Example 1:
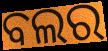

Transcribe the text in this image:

ବଲର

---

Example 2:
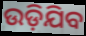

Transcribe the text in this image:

ଉଡ଼ିଯିବ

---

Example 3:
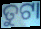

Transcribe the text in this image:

ତୁଟା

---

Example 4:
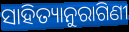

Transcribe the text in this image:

ସାହିତ୍ୟାନୁରାଗିଣୀ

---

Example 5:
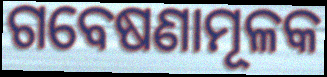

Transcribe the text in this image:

ଗବେଷଣାମୂଳକ